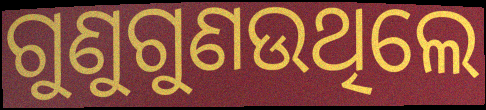
ଗୁଣୁଗୁଣଉଥିଲେ